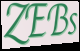
ZEBs